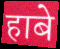
हाबे